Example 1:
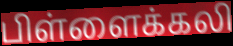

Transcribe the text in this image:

பிள்ளைக்கலி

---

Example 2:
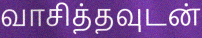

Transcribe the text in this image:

வாசித்தவுடன்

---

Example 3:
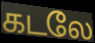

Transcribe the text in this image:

கடலே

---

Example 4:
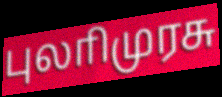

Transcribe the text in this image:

புலரிமுரசு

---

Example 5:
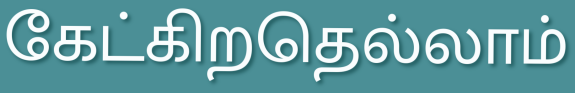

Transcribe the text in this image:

கேட்கிறதெல்லாம்